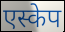
एस्केप